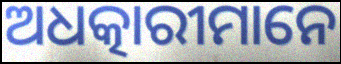
ଅଧତ୍କାରୀମାନେ